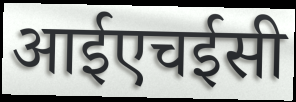
आईएचईसी